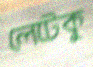
লেটেকু